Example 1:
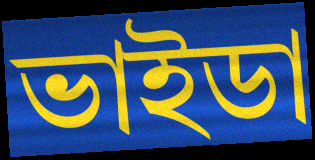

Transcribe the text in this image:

ভাইডা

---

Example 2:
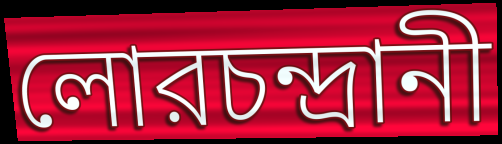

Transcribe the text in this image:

লোরচন্দ্রানী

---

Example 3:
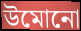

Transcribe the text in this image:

উমোনো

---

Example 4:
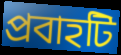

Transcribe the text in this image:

প্রবাহটি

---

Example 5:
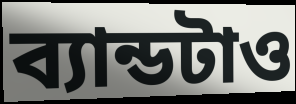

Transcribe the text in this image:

ব্যান্ডটাও